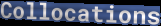
Collocations